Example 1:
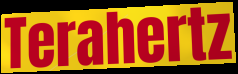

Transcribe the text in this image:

Terahertz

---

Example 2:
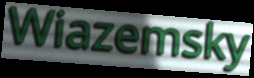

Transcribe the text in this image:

Wiazemsky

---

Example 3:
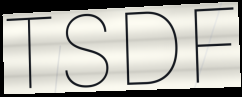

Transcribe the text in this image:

TSDF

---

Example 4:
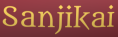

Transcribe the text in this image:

Sanjikai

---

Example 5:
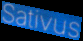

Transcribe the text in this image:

Sativus